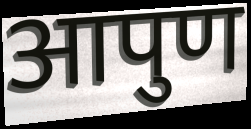
आपुण